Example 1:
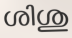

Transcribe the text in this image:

ശിശു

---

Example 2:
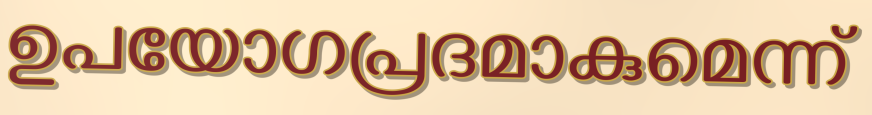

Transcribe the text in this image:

ഉപയോഗപ്രദമാകുമെന്ന്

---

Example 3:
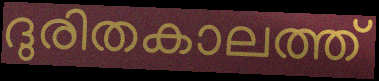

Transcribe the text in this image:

ദുരിതകാലത്ത്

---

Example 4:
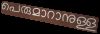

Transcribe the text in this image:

പെരുമാറാനുള്ള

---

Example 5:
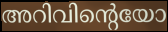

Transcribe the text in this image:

അറിവിന്റെയോ